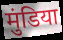
मुंडिया